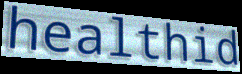
healthid